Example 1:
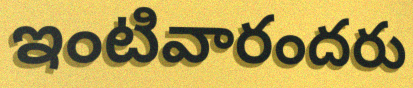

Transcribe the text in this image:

ఇంటివారందరు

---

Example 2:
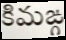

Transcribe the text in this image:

కిమఙ్గ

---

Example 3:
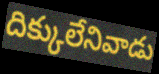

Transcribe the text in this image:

దిక్కులేనివాడు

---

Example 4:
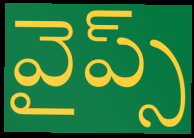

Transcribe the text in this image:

వైప్స్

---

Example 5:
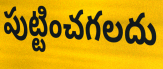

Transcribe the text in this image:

పుట్టించగలదు